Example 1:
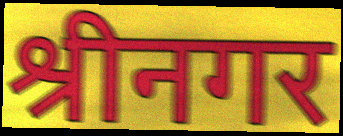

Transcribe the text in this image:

श्रीनगर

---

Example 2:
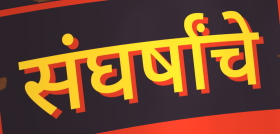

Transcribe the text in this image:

संघर्षांचे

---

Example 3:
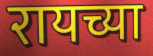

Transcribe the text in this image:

रायच्या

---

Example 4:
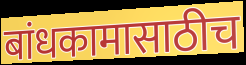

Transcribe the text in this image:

बांधकामासाठीच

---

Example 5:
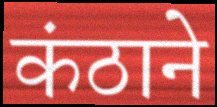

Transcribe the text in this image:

कंठाने